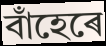
বাঁহেৰে